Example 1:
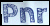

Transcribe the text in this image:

Pnr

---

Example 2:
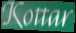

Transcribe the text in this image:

Kottar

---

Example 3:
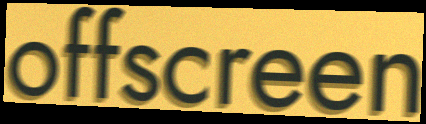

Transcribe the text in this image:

offscreen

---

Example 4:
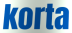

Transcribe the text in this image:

korta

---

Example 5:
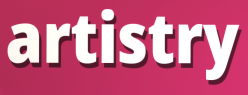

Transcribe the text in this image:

artistry